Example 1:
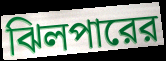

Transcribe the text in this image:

ঝিলপারের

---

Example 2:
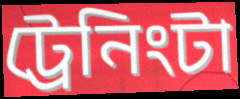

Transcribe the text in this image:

ট্রেনিংটা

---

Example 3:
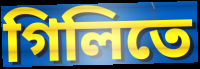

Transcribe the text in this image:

গিলিতে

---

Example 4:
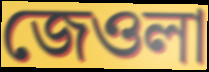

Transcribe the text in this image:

জেওলা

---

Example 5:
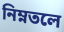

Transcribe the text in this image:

নিম্নতলে